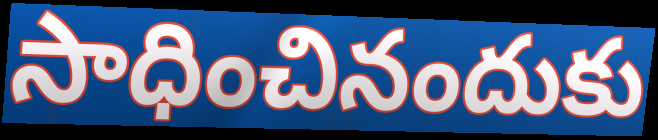
సాధించినందుకు